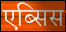
एब्सिस